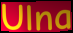
Ulna